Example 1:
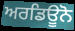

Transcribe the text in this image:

ਅਰਡਿਊਨੋ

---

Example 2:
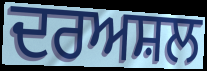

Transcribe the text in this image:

ਦਰਅਸ਼ਲ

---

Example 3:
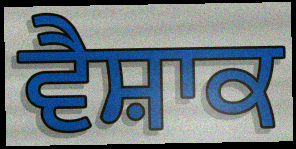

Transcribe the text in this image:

ਵੈਸ਼ਾਕ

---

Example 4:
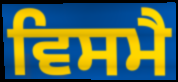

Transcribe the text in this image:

ਵਿਸਮੈ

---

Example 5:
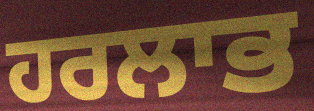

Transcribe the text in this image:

ਹਰਲਾਭ